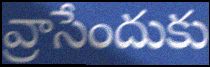
వ్రాసేందుకు